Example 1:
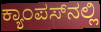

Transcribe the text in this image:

ಕ್ಯಾಂಪಸ್‌ನಲ್ಲಿ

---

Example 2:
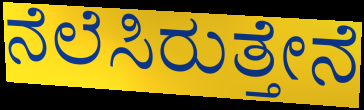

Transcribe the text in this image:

ನೆಲೆಸಿರುತ್ತೇನೆ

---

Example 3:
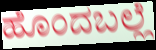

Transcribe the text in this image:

ಹೊಂದಬಲ್ಲೆ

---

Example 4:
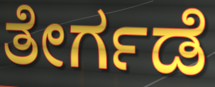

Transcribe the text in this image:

ತೇರ್ಗಡೆ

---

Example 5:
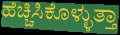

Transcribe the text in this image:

ಹೆಚ್ಚಿಸಿಕೊಳ್ಳುತ್ತಾ